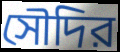
সৌদির